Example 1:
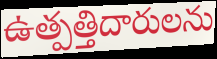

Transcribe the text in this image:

ఉత్పత్తిదారులను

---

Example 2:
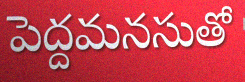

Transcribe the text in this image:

పెద్దమనసుతో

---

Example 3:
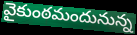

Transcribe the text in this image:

వైకుంఠమందునున్న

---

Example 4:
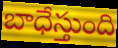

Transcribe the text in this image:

బాధేస్తుంది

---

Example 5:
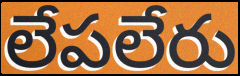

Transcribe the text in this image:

లేపలేరు